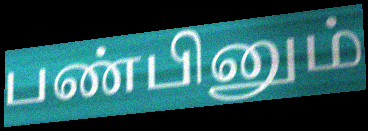
பண்பினும்